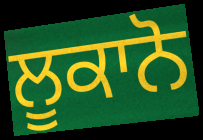
ਲੂਕਾਨੋ